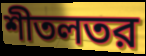
শীতলতর